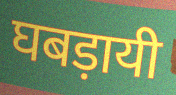
घबड़ायी